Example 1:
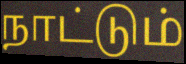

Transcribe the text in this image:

நாட்டும்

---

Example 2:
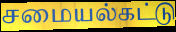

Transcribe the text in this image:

சமையல்கட்டு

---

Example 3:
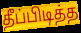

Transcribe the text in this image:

தீப்பிடித்த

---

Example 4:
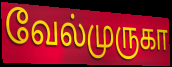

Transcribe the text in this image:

வேல்முருகா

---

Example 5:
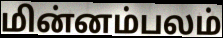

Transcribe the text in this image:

மின்னம்பலம்